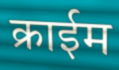
क्राईम